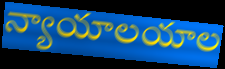
న్యాయాలయాల